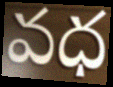
వధ